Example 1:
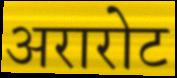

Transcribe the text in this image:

अरारोट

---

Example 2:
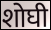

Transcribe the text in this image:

शोघी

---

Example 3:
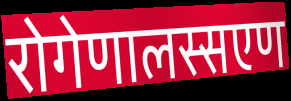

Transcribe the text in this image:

रोगेणालस्सएण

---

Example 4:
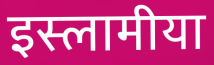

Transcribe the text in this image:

इस्लामीया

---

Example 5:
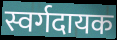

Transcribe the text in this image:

स्वर्गदायक